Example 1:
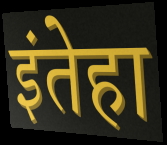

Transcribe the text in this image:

इंतेहा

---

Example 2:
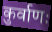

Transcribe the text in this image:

कुर्वाणः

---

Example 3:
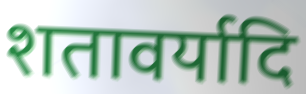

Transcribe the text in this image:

शतावर्यादि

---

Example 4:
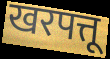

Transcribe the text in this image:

खरपत्तू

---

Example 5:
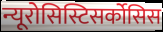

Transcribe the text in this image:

न्यूरोसिस्टिसर्कोसिस